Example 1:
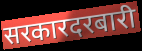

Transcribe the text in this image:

सरकारदरबारी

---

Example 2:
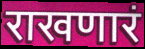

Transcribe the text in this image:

राखणारं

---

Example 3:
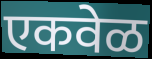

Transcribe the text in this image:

एकवेळ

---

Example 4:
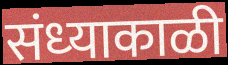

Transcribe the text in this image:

संध्‍याकाळी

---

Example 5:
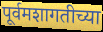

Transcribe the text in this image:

पूर्वमशागतीच्या